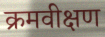
क्रमवीक्षण